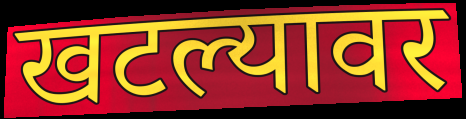
खटल्यावर